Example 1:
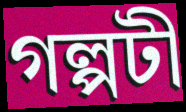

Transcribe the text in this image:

গল্পটী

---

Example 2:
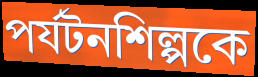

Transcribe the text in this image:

পর্যটনশিল্পকে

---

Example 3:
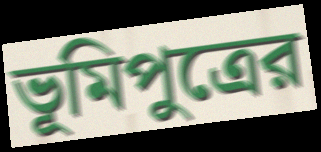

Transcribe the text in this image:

ভূমিপুত্রের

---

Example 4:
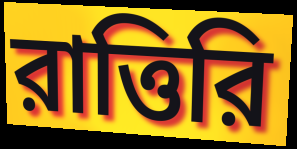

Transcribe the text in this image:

রাত্তিরি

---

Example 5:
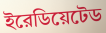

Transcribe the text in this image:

ইরেডিয়েটেড